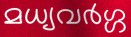
മധ്യവർഗ്ഗ